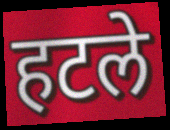
हटले